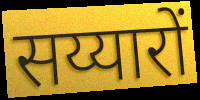
सय्यारों